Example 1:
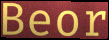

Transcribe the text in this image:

Beor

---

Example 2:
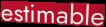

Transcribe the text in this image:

estimable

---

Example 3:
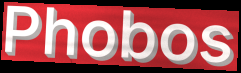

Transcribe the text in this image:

Phobos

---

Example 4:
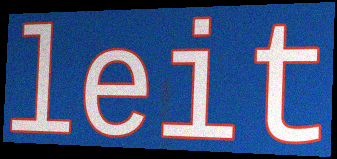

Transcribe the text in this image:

leit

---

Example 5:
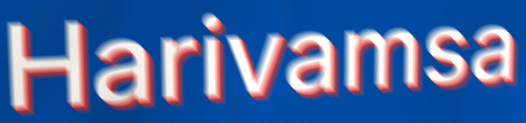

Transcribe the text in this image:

Harivamsa